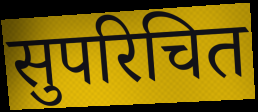
सुपरिचित